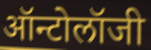
ऑन्टोलॉजी